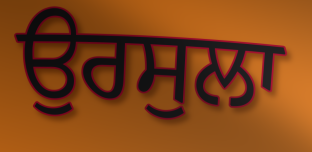
ਉਰਸੁਲਾ